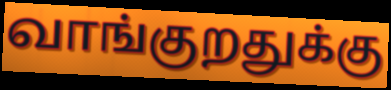
வாங்குறதுக்கு